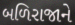
બળિરાજાને